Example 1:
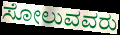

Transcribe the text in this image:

ಸೋಲುವವರು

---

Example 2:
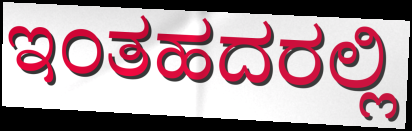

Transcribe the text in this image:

ಇಂತಹದರಲ್ಲಿ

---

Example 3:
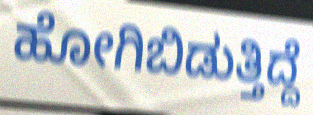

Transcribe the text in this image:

ಹೋಗಿಬಿಡುತ್ತಿದ್ದೆ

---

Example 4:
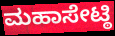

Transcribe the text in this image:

ಮಹಾಸೇಟ್ಠಿ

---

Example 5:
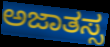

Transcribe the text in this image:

ಅಜಾತಸ್ಸ